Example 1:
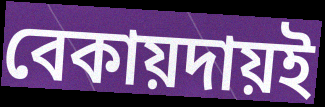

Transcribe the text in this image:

বেকায়দায়ই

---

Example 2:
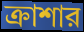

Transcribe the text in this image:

ক্রাশার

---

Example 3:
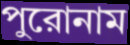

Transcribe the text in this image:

পুরোনাম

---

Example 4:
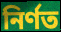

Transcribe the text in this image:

নির্ণত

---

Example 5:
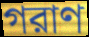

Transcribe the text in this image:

গরাণ